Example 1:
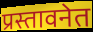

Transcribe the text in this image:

प्रस्तावनेत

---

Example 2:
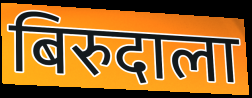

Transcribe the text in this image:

बिरुदाला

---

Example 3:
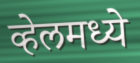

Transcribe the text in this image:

व्हेलमध्ये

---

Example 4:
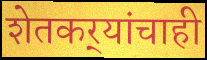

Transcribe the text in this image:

शेतकर्यांचाही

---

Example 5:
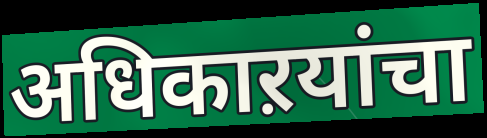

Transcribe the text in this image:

अधिकाऱयांचा